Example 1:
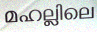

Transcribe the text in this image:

മഹല്ലിലെ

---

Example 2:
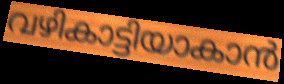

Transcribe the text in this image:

വഴികാട്ടിയാകാൻ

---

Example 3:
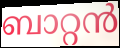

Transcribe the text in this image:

ബാറ്റൻ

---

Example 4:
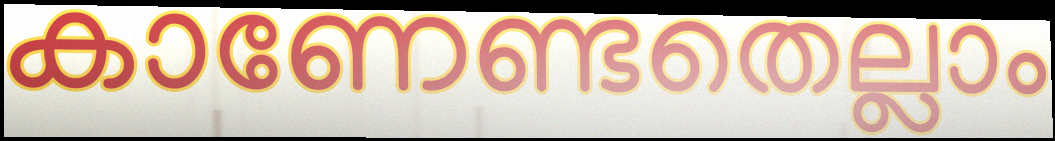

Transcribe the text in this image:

കാണേണ്ടതെല്ലാം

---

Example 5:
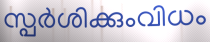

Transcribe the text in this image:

സ്പർശിക്കുംവിധം